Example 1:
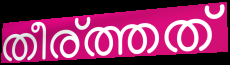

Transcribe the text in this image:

തീര്ത്തത്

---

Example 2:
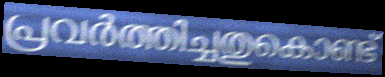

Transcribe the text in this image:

പ്രവർത്തിച്ചതുകൊണ്ട്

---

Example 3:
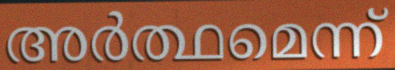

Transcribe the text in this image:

അർത്ഥമെന്ന്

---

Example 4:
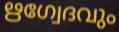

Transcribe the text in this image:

ഋഗ്വേദവും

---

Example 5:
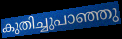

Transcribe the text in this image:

കുതിച്ചുപാഞ്ഞു